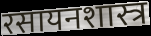
रसायनशास्त्र